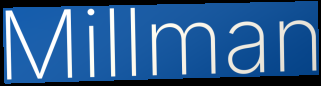
Millman